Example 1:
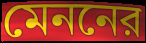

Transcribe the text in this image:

মেননের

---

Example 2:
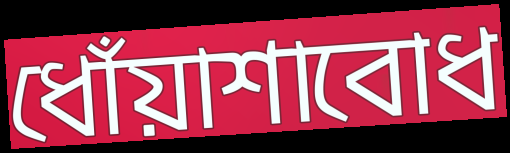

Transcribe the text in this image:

ধোঁয়াশাবোধ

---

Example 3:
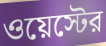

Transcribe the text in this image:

ওয়েস্টের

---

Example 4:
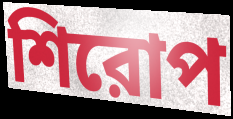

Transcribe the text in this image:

শিরোপ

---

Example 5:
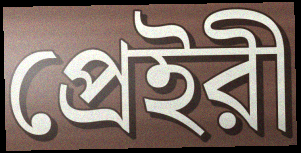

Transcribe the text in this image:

প্রেইরী